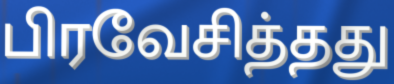
பிரவேசித்தது